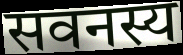
सवनस्य